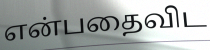
என்பதைவிட